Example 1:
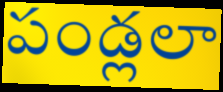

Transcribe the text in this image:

పండ్లలా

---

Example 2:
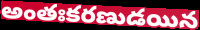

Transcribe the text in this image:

అంతఃకరణుడయిన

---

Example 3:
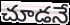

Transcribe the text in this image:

చూడనే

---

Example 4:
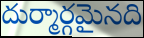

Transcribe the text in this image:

దుర్మార్గమైనది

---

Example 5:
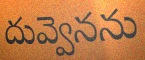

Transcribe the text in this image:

దువ్వెనను